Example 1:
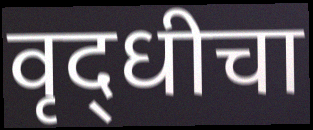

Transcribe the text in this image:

वृद्धीचा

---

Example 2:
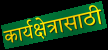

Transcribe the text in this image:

कार्यक्षेत्रासाठी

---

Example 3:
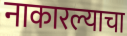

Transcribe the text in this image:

नाकारल्याचा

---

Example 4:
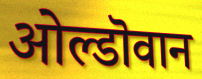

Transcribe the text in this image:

ओल्डॊवान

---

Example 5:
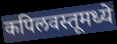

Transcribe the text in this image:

कपिलवस्तूमध्ये